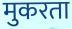
मुकरता